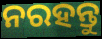
ନରହନ୍ତୁ